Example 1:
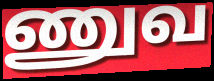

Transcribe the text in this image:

ணுவ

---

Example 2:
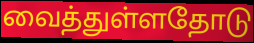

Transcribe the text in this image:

வைத்துள்ளதோடு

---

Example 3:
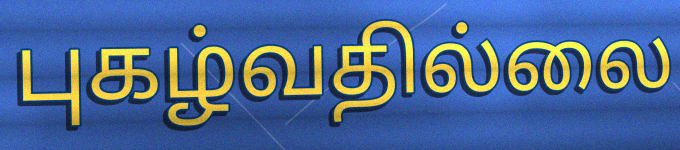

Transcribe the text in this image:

புகழ்வதில்லை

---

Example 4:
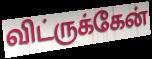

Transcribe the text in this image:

விட்ருக்கேன்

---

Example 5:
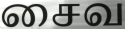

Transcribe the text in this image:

சைவ